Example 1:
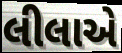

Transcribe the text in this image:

લીલાએ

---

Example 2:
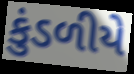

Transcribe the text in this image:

કુંડળીયે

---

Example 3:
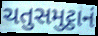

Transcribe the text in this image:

ચતુસમુટ્ઠાનં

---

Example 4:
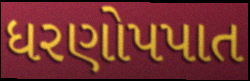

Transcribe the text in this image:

ધરણોપપાત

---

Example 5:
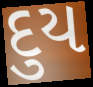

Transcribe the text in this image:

દુય